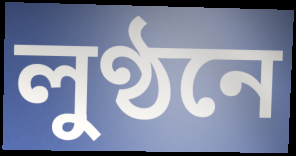
লুণ্ঠনে